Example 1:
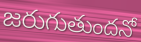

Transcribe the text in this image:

జరుగుతుందనో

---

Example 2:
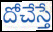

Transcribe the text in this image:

దోచేస్తే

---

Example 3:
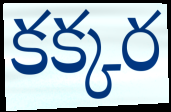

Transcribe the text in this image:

కక్కర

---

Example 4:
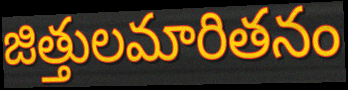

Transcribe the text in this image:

జిత్తులమారితనం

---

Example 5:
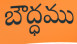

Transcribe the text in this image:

బౌద్ధము